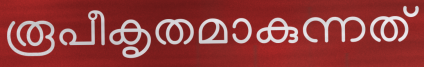
രൂപീകൃതമാകുന്നത്